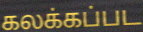
கலக்கப்பட